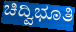
ಚಿದ್ವಿಭೂತಿ